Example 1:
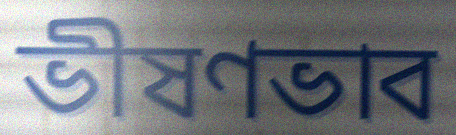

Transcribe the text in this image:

ভীষণভাব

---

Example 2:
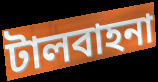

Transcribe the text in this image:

টালবাহনা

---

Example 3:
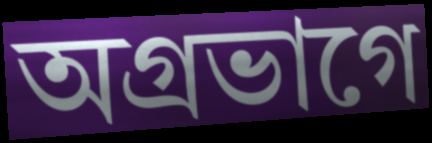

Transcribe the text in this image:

অগ্রভাগে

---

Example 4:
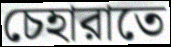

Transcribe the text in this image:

চেহারাতে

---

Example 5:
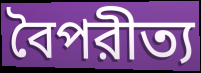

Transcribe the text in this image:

বৈপরীত্য